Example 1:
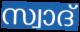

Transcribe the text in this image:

സ്വാദ്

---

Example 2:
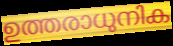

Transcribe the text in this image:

ഉത്തരാധുനിക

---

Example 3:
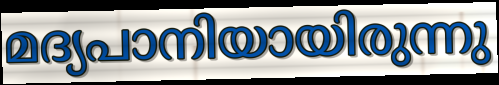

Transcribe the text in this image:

മദ്യപാനിയായിരുന്നു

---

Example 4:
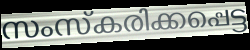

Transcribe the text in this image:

സംസ്‌കരിക്കപ്പെട്ട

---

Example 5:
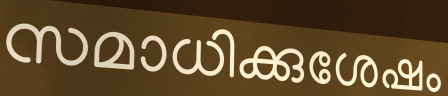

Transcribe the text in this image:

സമാധിക്കുശേഷം